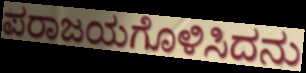
ಪರಾಜಯಗೊಳಿಸಿದನು